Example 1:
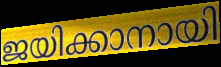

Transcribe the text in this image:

ജയിക്കാനായി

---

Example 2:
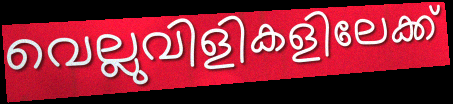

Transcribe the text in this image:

വെല്ലുവിളികളിലേക്ക്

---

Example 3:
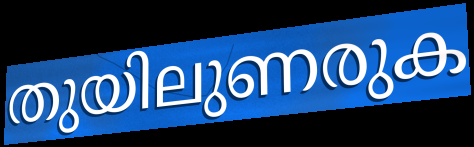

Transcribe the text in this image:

തുയിലുണരുക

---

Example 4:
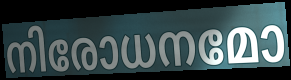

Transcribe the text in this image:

നിരോധനമോ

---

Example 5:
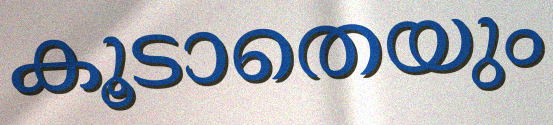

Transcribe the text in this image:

കൂടാതെയും